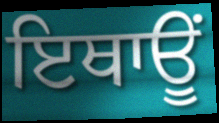
ਇਥਾਊਂ